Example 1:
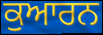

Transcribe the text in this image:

ਕੁਆਰਨ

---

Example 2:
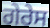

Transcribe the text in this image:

ਗੇਰੇਸ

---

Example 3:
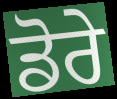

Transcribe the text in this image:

ਡੋਰੇ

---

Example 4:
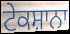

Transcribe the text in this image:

ਟੇਕਸ਼ਾਨਾ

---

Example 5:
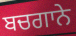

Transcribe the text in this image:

ਬਚਗਾਨੇ